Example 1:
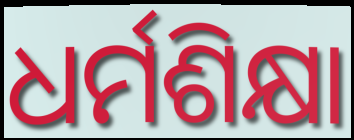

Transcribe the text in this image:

ଧର୍ମଶିକ୍ଷା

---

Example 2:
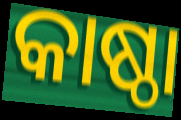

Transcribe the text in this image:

କାଷ୍ଠା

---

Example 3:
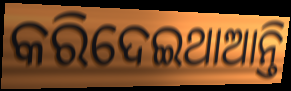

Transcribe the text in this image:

କରିଦେଇଥାଆନ୍ତି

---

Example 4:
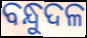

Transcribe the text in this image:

ବନ୍ଧୁଦଳ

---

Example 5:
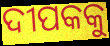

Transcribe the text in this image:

ଦୀପକକୁ